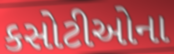
કસોટીઓના